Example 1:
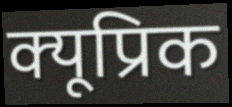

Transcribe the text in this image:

क्यूप्रिक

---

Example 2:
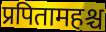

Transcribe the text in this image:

प्रपितामहश्च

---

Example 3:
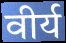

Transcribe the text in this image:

वीर्य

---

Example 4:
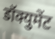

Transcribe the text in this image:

डॉक्युमेंट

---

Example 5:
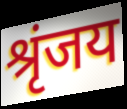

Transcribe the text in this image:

श्रृंजय